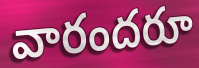
వారందరూ